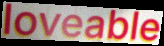
loveable